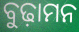
ବୁଢ଼ାମନ